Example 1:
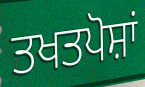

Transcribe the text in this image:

ਤਖਤਪੋਸ਼ਾਂ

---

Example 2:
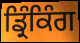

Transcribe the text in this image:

ਡ੍ਰਿੰਕਿੰਗ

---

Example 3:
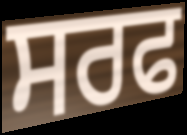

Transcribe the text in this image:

ਸਰਫ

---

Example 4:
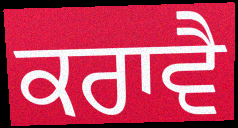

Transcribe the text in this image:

ਕਰਾਵੈ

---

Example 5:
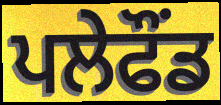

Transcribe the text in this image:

ਪਲੇਫੌਂਡ